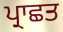
ਪ੍ਰਾਛਤ